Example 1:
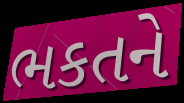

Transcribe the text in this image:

ભકતને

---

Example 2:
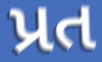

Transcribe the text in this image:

પ્રત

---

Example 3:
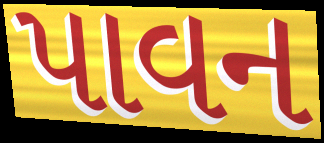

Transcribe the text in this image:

પાવન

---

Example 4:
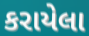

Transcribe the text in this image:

કરાયેલા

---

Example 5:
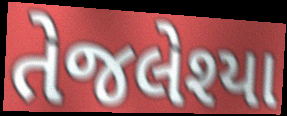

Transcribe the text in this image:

તેજલેશ્યા